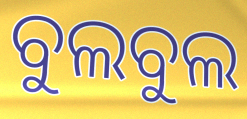
ବୁଲବୁଲ